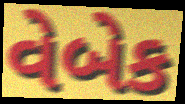
વેબેક